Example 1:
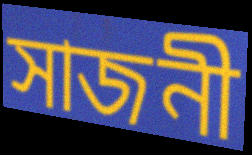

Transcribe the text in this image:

সাজনী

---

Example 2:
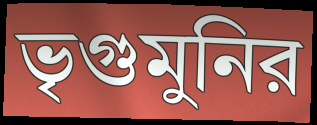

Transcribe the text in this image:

ভৃগুমুনির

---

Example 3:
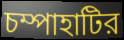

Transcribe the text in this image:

চম্পাহাটির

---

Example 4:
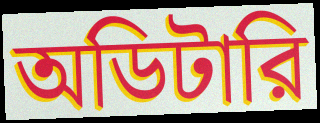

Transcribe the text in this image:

অডিটারি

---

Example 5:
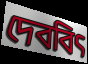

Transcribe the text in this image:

দেববিৎ